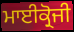
ਮਾਈਕ੍ਰੋਜੀ